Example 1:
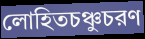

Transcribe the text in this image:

লোহিতচঞ্চুচরণ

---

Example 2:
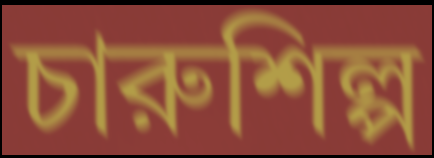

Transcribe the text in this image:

চারুশিল্প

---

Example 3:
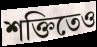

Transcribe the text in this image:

শক্তিতেও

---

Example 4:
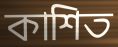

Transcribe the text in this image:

কাশিত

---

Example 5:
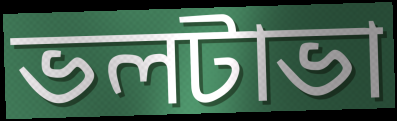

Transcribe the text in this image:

ভলটাভা